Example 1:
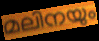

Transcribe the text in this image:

മലിനയും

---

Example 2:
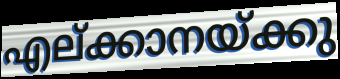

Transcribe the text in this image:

എല്ക്കാനയ്ക്കു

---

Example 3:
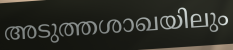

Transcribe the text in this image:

അടുത്തശാഖയിലും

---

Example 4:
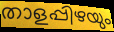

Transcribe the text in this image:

താളപ്പിഴയും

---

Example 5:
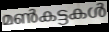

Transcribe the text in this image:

മൺകട്ടകൾ